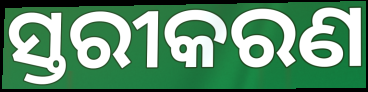
ସ୍ତରୀକରଣ